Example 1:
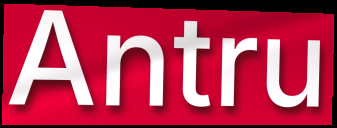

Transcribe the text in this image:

Antru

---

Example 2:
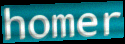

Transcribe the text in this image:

homer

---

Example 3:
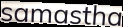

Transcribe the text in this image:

samastha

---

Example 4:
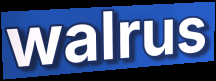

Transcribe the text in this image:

walrus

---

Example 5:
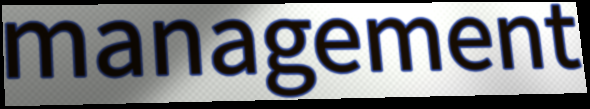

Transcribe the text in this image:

management